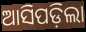
ଆସିପଡ଼ିଲା